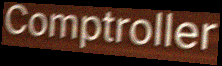
Comptroller